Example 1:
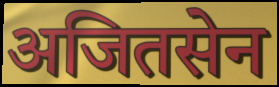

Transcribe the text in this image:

अजितसेन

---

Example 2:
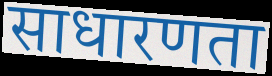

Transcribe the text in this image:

साधारणता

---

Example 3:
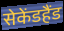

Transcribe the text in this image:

सेकेंडहैंड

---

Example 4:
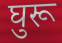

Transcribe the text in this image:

घुरू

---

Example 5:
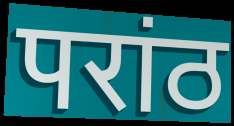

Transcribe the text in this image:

परांठ